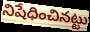
నిషేధించినట్టు